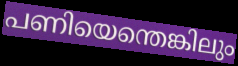
പണിയെന്തെങ്കിലും